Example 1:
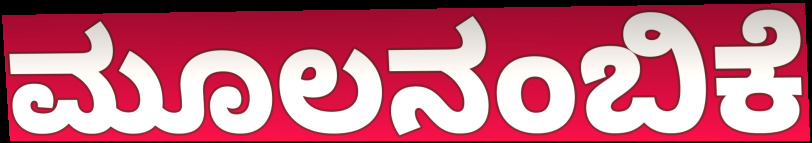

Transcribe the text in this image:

ಮೂಲನಂಬಿಕೆ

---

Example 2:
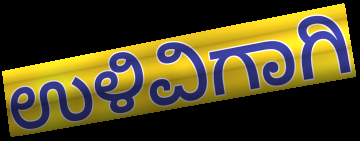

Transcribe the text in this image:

ಉಳಿವಿಗಾಗಿ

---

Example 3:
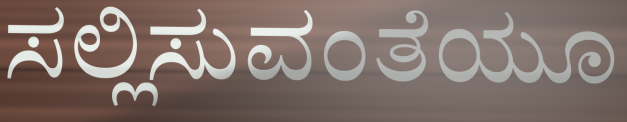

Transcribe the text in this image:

ಸಲ್ಲಿಸುವಂತೆಯೂ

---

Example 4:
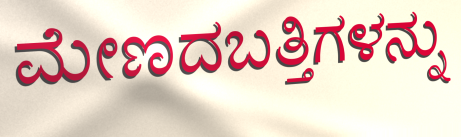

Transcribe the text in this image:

ಮೇಣದಬತ್ತಿಗಳನ್ನು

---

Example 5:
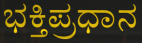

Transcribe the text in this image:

ಭಕ್ತಿಪ್ರಧಾನ